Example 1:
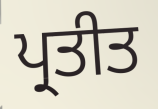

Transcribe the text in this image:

ਪ੍ਰਤੀਤ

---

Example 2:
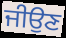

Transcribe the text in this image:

ਜੀਉਣ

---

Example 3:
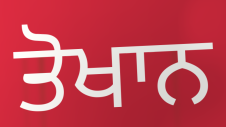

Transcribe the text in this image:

ਤੋਖਾਨ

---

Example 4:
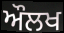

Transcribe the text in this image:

ਔਲਖ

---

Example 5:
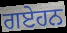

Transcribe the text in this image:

ਗਏਹਨ